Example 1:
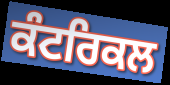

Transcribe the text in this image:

ਕੰਟਰਿਕਲ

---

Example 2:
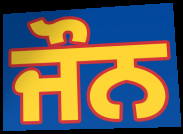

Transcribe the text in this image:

ਜੌਨ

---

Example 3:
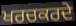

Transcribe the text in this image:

ਖਰਚਕਰਦੇ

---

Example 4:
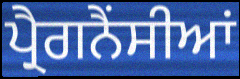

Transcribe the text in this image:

ਪ੍ਰੈਗਨੈਂਸੀਆਂ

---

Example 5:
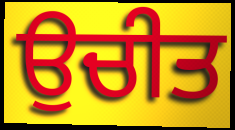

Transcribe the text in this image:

ਉਚੀਤ